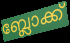
ബ്ലോക്ക്